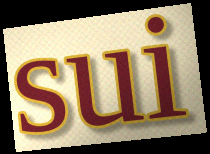
sui